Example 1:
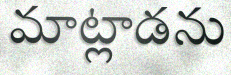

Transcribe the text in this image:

మాట్లాడను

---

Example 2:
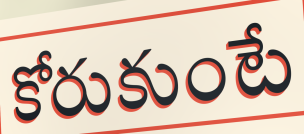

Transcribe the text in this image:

కోరుకుంటే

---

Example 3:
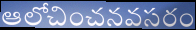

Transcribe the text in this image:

ఆలోచించనవసరం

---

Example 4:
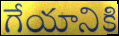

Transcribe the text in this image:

గేయానికి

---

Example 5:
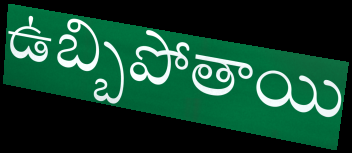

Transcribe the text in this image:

ఉబ్బిపోతాయి